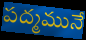
పద్మమునే